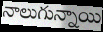
నాలుగున్నాయి